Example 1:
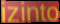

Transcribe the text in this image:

izinto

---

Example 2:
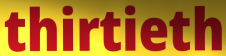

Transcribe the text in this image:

thirtieth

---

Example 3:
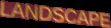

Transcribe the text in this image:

LANDSCAPE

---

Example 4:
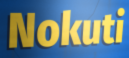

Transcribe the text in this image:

Nokuti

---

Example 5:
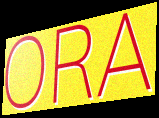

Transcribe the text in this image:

ORA